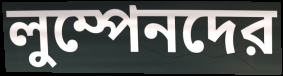
লুম্পেনদের